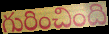
గురించింది